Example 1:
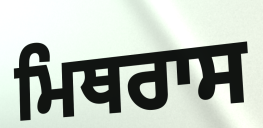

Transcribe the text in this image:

ਮਿਥਰਾਸ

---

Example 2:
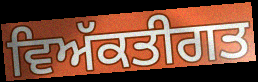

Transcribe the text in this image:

ਵਿਅੱਕਤੀਗਤ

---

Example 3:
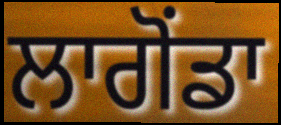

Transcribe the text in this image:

ਲਾਗੋਂਡਾ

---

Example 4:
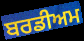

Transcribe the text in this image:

ਬਰਡੀਅਮ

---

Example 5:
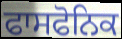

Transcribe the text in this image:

ਫਾਸਫੋਨਿਕ